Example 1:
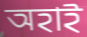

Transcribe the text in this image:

অহাই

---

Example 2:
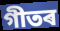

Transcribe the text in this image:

গীতৰ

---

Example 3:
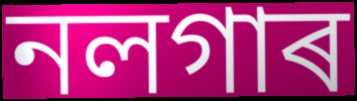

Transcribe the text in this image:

নলগাৰ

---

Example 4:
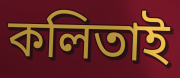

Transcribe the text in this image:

কলিতাই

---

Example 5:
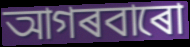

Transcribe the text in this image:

আগৰবাৰো